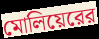
মোলিয়েরের